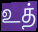
உத்